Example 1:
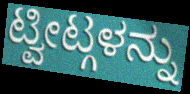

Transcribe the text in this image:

ಟ್ವೀಟ್ಗಳನ್ನು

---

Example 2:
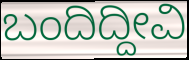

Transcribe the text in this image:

ಬಂದಿದ್ದೀವಿ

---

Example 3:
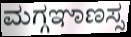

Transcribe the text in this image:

ಮಗ್ಗಞಾಣಸ್ಸ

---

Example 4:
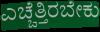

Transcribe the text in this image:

ಎಚ್ಚೆತ್ತಿರಬೇಕು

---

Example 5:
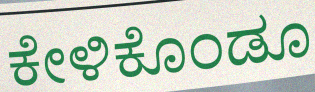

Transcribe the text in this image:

ಕೇಳಿಕೊಂಡೂ